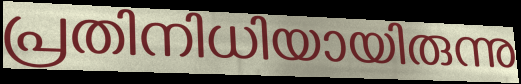
പ്രതിനിധിയായിരുന്നു